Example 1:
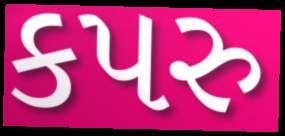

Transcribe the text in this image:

કપરુ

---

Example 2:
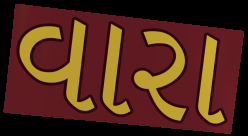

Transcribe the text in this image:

વારા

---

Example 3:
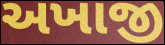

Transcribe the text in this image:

અખાજી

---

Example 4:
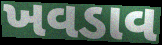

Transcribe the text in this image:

ખવડાવ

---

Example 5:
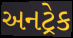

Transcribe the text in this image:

અનટ્રેક